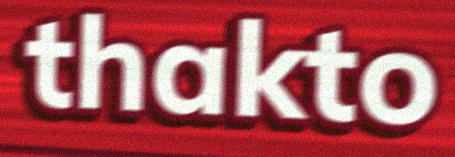
thakto